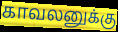
காவலனுக்கு